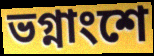
ভগ্নাংশে